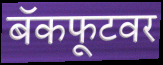
बॅकफूटवर